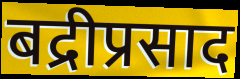
बद्रीप्रसाद